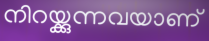
നിറയ്ക്കുന്നവയാണ്